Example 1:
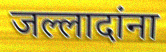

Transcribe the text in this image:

जल्लादांना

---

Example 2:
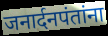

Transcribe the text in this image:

जनार्दनपंतांना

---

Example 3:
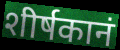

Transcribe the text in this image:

शीर्षकानं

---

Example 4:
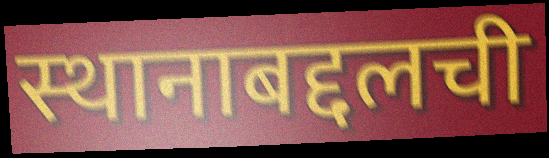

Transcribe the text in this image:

स्थानाबद्दलची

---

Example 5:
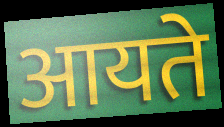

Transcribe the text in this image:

आयते